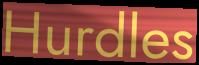
Hurdles